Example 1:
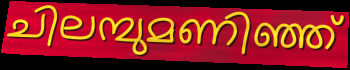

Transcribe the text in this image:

ചിലമ്പുമണിഞ്ഞ്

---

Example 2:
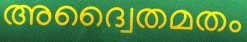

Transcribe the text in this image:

അദ്വൈതമതം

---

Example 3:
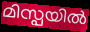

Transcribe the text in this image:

മിസ്പയിൽ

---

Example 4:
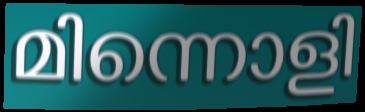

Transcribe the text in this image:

മിന്നൊളി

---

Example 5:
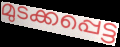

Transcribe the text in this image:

മുടക്കപ്പെട്ട